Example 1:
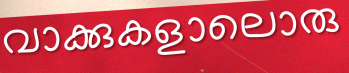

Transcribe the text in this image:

വാക്കുകളാലൊരു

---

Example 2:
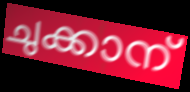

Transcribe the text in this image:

ചുക്കാന്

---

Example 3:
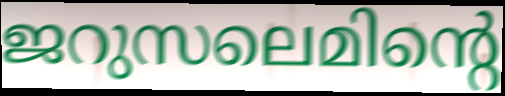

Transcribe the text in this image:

ജറുസലെമിന്റെ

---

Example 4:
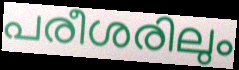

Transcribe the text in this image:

പരീശരിലും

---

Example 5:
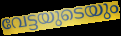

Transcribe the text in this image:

വേട്ടയുടെയും